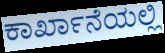
ಕಾರ್ಖಾನೆಯಲ್ಲಿ